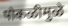
पोकळीमुळे